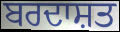
ਬਰਦਾਸ਼ਤ